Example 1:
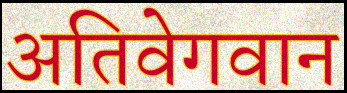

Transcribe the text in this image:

अतिवेगवान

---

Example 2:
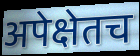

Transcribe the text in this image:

अपेक्षेतच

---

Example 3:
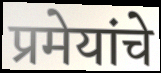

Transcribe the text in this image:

प्रमेयांचे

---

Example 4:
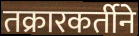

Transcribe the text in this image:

तक्रारकर्तीने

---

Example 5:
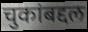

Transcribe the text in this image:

चुकांबद्दल